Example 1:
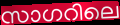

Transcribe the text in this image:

സാഗറിലെ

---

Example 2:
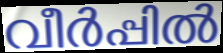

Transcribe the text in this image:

വീർപ്പിൽ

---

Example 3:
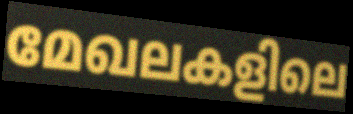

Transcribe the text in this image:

മേഖലകളിലെ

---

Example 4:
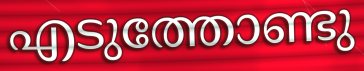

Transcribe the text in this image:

എടുത്തോണ്ടു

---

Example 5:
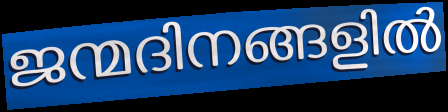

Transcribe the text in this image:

ജന്മദിനങ്ങളിൽ